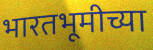
भारतभूमीच्या